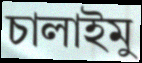
চালাইমু